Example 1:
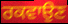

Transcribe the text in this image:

ਰਕਵਾਉਣ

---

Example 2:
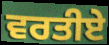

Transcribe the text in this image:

ਵਰਤੀਏ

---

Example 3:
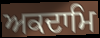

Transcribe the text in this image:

ਅਕਦਾਮਿ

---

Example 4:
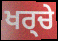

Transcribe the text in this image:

ਖਰ੍ਚੇ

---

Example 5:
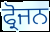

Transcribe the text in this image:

ਫ੍ਰੋਜਨ